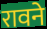
रावने